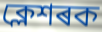
ক্লেশৰক